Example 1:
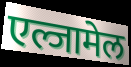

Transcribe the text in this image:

एल्जामेल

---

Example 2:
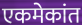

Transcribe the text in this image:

एकमेकांत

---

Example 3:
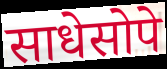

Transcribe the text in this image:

साधेसोपे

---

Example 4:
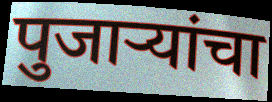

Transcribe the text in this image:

पुजाऱ्यांचा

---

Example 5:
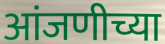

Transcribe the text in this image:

आंजणीच्या